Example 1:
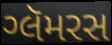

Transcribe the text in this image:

ગ્લૅમરસ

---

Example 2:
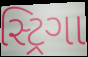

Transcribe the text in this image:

સ્ટ્રિગા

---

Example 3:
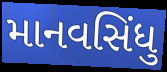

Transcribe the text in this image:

માનવસિંધુ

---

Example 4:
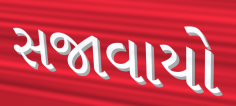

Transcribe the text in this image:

સજાવાયો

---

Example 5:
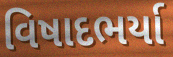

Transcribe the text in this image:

વિષાદભર્યા